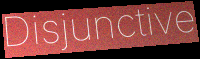
Disjunctive